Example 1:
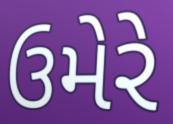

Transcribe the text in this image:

ઉમેરે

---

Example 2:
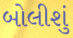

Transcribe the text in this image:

બોલીશું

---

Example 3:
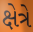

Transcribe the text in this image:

ક્ષેત્રે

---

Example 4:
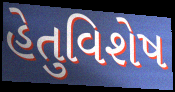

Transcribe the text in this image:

હેતુવિશેષ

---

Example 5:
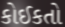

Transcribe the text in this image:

કોઈકતો